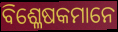
ବିଶ୍ଳେଷକମାନେ